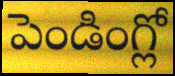
పెండింగ్లో